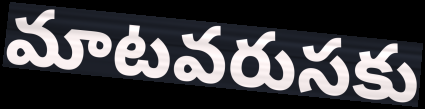
మాటవరుసకు